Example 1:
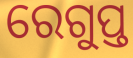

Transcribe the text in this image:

ରେଗୁପ୍ତ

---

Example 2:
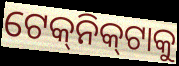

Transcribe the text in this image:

ଟେକ୍‌ନିକ୍‌ଟାକୁ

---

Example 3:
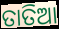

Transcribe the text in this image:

ତାତିଆ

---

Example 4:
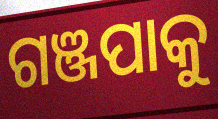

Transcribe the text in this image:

ଗଞ୍ଜପାକୁ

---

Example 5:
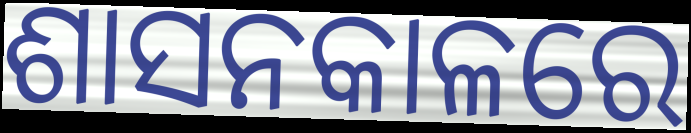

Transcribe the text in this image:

ଶାସନକାଳରେ